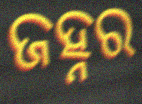
ଜହ୍ନର